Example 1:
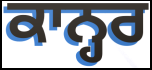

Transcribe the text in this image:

ਕਾਨ੍ਹਰ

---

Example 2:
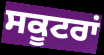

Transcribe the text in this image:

ਸਕੂਟਰਾਂ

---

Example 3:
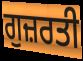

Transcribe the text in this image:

ਗੁਜ਼ਰਤੀ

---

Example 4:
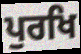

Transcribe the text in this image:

ਪੁਰਖਿ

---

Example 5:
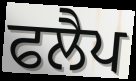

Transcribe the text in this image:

ਫਲੈਪ